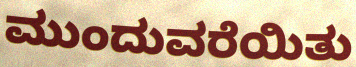
ಮುಂದುವರೆಯಿತು